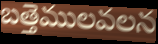
బత్తెములవలన